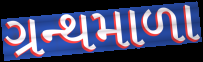
ગ્રન્થમાળા